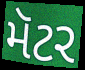
મૅટર